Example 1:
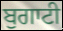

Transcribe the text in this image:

ਬੁਗਾਟੀ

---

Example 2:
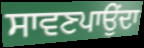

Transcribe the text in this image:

ਸਾਵਣਪਾਉਂਦਾ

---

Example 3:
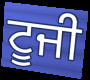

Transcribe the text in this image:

ਟੂਜੀ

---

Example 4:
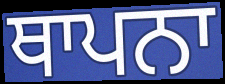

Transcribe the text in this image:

ਥਾਪਨਾ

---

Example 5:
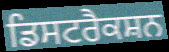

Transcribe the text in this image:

ਡਿਸਟਰੈਕਸ਼ਨ